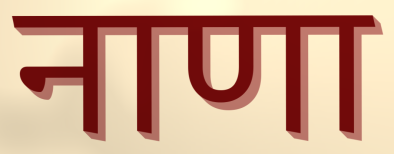
नाणा